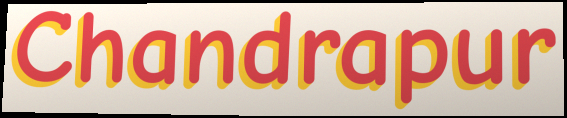
Chandrapur